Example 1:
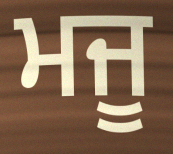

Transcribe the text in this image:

ਮਜੂ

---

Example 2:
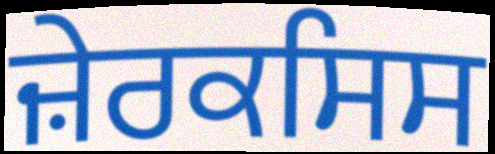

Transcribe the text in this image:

ਜ਼ੇਰਕਸਿਸ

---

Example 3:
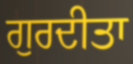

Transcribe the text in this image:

ਗੁਰਦੀਤਾ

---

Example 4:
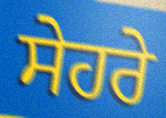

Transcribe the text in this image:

ਸੇਹਰੇ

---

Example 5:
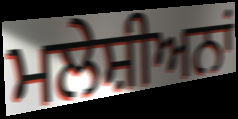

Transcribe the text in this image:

ਮਲੇਸ਼ੀਅਨਾਂ